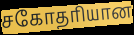
சகோதரியான